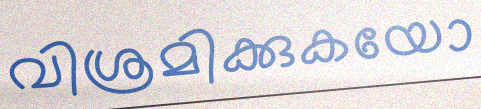
വിശ്രമിക്കുകയോ